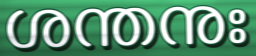
ശന്തനുഃ